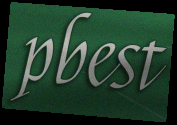
pbest